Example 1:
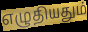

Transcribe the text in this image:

எழுதியதும்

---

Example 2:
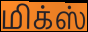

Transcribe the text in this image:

மிக்ஸ்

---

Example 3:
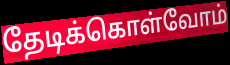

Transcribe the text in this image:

தேடிக்கொள்வோம்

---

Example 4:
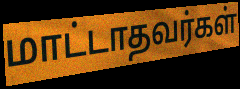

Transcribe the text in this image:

மாட்டாதவர்கள்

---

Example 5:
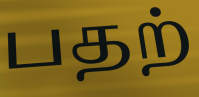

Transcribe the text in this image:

பதற்